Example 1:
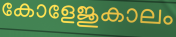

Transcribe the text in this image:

കോളേജുകാലം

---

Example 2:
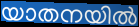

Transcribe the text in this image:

യാതനയിൽ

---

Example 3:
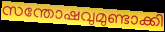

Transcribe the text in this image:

സന്തോഷവുമുണ്ടാക്കി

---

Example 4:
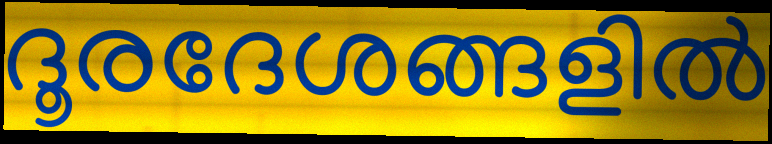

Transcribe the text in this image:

ദൂരദേശങ്ങളിൽ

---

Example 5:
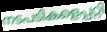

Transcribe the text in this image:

നടപടികളെപ്പറ്റി